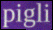
pigli